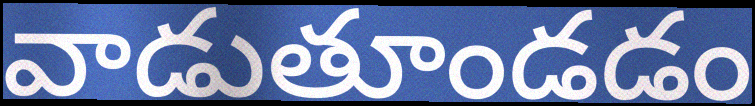
వాడుతూండడం